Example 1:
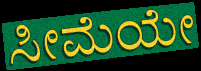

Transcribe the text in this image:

ಸೀಮೆಯೇ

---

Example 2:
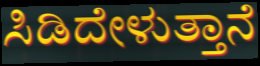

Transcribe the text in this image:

ಸಿಡಿದೇಳುತ್ತಾನೆ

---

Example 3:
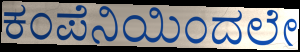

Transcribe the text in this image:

ಕಂಪೆನಿಯಿಂದಲೇ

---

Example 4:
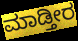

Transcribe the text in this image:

ಮಾಡ್ತೀರ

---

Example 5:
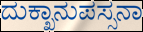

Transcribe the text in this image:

ದುಕ್ಖಾನುಪಸ್ಸನಾ